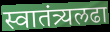
स्वातंत्र्यलढा